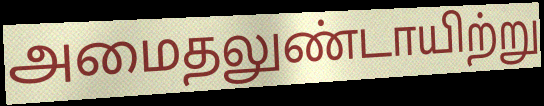
அமைதலுண்டாயிற்று